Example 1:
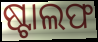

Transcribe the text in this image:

ଷ୍ଟାଲଫ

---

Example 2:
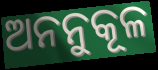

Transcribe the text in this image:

ଅନନୁକୂଳ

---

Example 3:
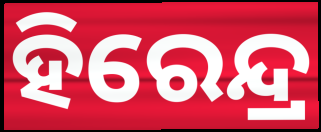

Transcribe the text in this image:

ହିରେନ୍ଦ୍ର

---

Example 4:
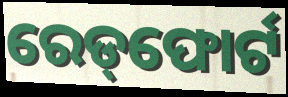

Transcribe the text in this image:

ରେଡ୍‌ଫୋର୍ଟ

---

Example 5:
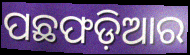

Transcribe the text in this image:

ପଛଫଡ଼ିଆର